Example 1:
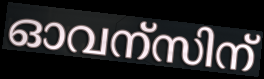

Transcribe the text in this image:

ഓവന്സിന്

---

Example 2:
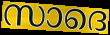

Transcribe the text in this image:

സാദെ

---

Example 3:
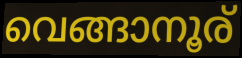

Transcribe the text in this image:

വെങ്ങാനൂര്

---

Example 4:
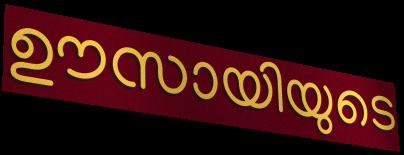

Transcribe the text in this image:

ഊസായിയുടെ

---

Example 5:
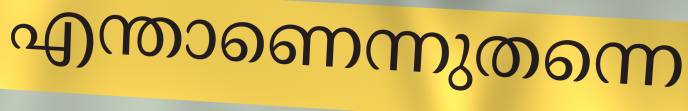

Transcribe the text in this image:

എന്താണെന്നുതന്നെ